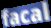
facal